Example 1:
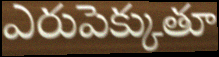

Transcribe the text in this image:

ఎరుపెక్కుతూ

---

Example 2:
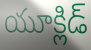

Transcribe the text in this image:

యూక్లిడ్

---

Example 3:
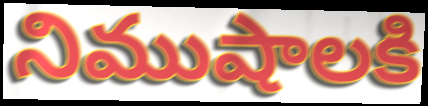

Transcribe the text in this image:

నిముషాలకి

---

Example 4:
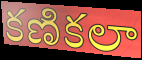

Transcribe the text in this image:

కణికలా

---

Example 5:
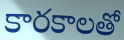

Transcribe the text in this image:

కారకాలతో